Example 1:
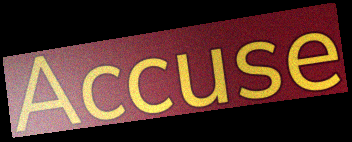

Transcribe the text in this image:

Accuse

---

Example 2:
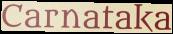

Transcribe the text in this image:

Carnataka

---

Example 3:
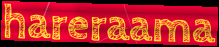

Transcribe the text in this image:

hareraama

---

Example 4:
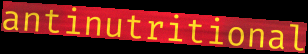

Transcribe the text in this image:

antinutritional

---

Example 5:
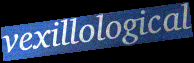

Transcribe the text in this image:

vexillological